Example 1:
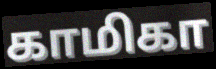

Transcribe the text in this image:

காமிகா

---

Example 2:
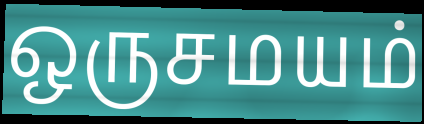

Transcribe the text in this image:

ஒருசமயம்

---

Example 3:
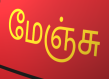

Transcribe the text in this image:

மேஞ்சு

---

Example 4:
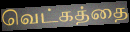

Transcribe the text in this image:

வெட்கத்தை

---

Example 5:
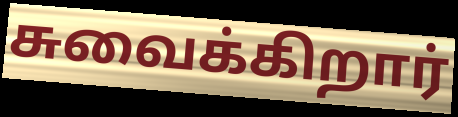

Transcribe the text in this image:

சுவைக்கிறார்